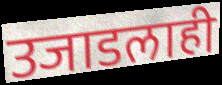
उजाडलाही